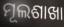
ମୂଲଶାଖା